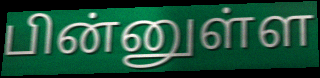
பின்னுள்ள